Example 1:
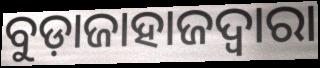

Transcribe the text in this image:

ବୁଡ଼ାଜାହାଜଦ୍ୱାରା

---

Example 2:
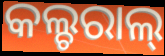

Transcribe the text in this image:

କଲ୍ଚରାଲ୍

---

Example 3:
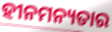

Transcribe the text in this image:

ହୀନମନ୍ୟତାର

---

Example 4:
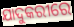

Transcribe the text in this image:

ଯାଦୁକରୀରେ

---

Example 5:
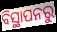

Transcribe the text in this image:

ବିସ୍ଥାପନରୁ